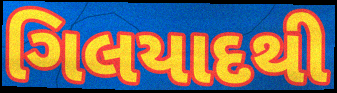
ગિલયાદથી